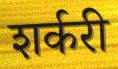
शर्करी